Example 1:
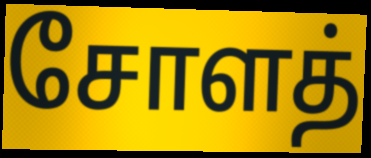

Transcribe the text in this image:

சோளத்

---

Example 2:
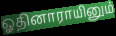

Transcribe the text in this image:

ஓதினாராயினும்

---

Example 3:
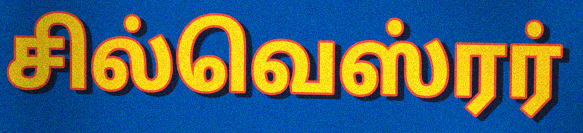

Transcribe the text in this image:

சில்வெஸ்ரர்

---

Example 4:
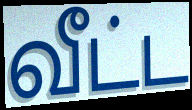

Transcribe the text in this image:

வீட்ட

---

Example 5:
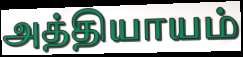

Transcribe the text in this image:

அத்தியாயம்